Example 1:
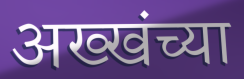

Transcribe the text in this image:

अख्खंच्या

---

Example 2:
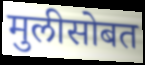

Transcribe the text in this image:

मुलीसोबत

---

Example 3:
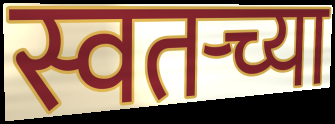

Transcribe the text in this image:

स्वतर्‍च्या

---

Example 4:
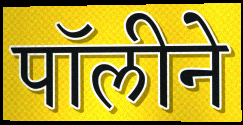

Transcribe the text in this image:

पॉलीने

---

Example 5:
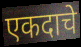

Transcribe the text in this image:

एकदाचे